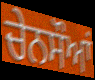
ਚੇਨਸੌਆਂ